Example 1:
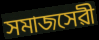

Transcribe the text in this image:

সমাজসেৱী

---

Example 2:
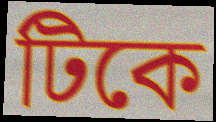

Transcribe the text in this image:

টিকে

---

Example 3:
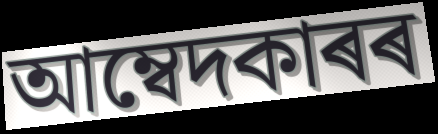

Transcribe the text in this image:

আম্বেদকাৰৰ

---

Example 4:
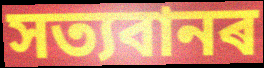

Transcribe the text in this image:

সত্যবানৰ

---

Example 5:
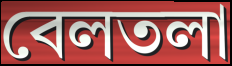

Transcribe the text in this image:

বেলতলা